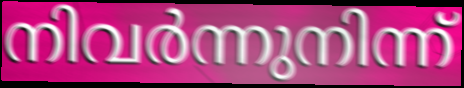
നിവർന്നുനിന്ന്